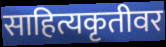
साहित्यकृतीवर